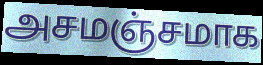
அசமஞ்சமாக